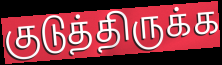
குடுத்திருக்க